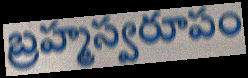
బ్రహ్మస్వరూపం